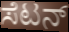
ಸೆಟನ್